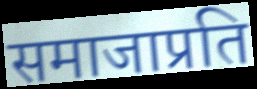
समाजाप्रति